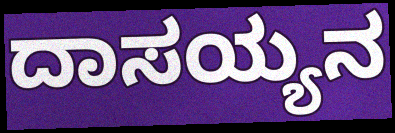
ದಾಸಯ್ಯನ